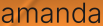
amanda